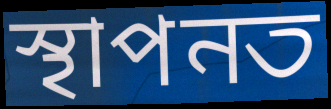
স্থাপনত